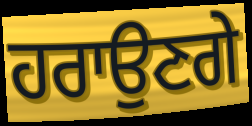
ਹਰਾਉਣਗੇ